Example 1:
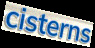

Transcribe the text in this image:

cisterns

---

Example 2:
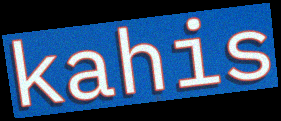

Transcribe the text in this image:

kahis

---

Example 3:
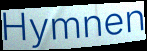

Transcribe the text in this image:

Hymnen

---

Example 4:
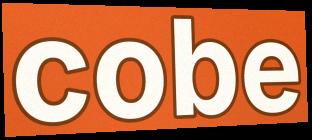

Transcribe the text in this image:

cobe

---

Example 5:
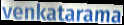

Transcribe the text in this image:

venkatarama